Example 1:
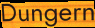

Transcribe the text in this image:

Dungern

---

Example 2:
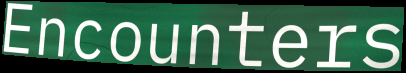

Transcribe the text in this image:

Encounters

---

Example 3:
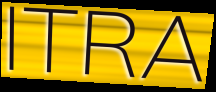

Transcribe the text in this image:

ITRA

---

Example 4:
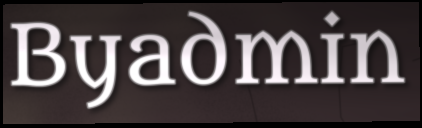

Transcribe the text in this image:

Byadmin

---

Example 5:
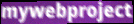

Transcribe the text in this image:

mywebproject